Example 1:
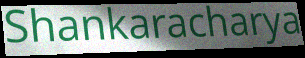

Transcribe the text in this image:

Shankaracharya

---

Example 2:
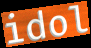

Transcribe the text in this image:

idol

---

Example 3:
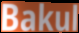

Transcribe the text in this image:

Bakul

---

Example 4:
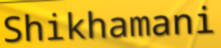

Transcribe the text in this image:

Shikhamani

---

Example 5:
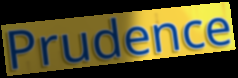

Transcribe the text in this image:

Prudence